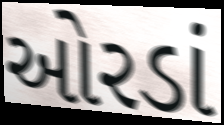
ઓરડાં